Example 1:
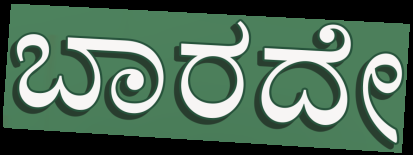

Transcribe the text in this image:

ಬಾರದೇ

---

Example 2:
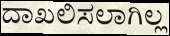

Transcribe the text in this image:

ದಾಖಲಿಸಲಾಗಿಲ್ಲ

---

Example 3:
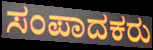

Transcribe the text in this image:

ಸಂಪಾದಕರು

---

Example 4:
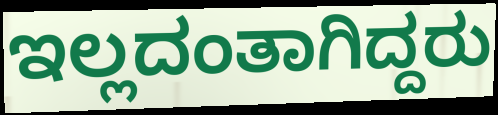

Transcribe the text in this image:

ಇಲ್ಲದಂತಾಗಿದ್ದರು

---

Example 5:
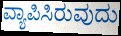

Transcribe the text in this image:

ವ್ಯಾಪಿಸಿರುವುದು